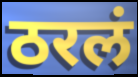
ठरलं